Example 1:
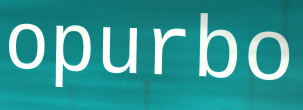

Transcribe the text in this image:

opurbo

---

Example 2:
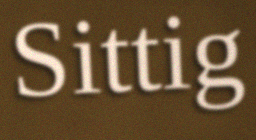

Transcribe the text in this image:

Sittig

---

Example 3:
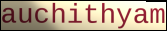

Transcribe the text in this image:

auchithyam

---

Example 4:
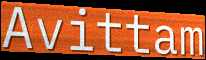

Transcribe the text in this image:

Avittam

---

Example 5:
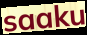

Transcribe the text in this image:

saaku